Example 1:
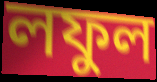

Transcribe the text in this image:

লফুল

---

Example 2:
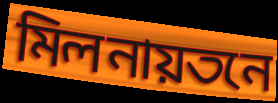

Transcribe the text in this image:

মিলনায়তনে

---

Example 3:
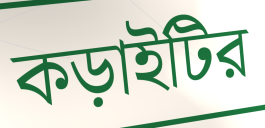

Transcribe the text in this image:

কড়াইটির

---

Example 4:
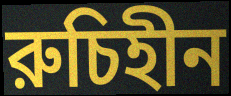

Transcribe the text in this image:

রুচিহীন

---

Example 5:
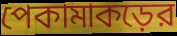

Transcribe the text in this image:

পেকামাকড়ের